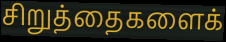
சிறுத்தைகளைக்